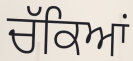
ਚੱਕਿਆਂ